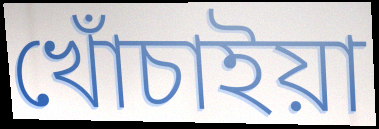
খোঁচাইয়া